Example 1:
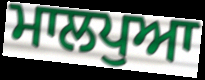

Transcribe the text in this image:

ਮਾਲਪੁਆ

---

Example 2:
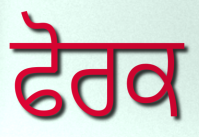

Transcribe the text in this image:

ਫੋਰਕ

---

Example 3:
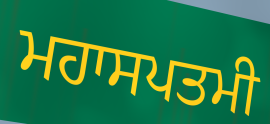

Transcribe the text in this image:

ਮਹਾਸਪਤਮੀ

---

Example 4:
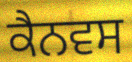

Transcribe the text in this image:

ਕੈਨਵਸ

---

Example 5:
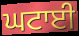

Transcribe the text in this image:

ਘਟਾਈ